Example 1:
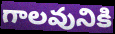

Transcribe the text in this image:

గాలవునికి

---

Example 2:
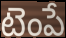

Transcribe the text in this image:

టెంపే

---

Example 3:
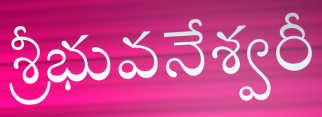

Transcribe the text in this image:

శ్రీభువనేశ్వరీ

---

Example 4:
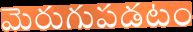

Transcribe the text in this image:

మెరుగుపడటం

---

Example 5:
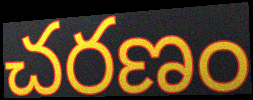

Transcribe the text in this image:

చరణం